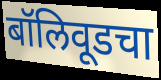
बॉलिवूडचा